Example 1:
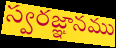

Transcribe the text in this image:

స్వరజ్ఞానము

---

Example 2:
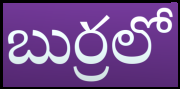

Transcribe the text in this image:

బుర్రలో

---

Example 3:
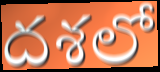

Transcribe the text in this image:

దశలో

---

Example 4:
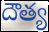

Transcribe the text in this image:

దౌత్య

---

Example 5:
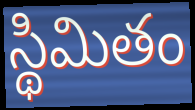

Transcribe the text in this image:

స్థిమితం